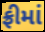
ફ્રીમાં